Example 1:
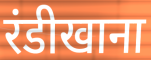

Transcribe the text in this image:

रंडीखाना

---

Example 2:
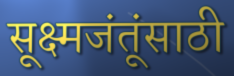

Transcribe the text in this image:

सूक्ष्मजंतूंसाठी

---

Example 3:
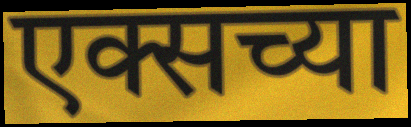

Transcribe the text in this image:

एक्सच्या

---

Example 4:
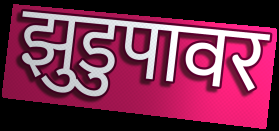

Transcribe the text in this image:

झुडुपावर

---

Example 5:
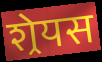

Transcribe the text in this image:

श्रेयस